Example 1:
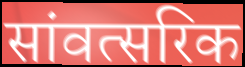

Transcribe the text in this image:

सांवत्सरिक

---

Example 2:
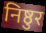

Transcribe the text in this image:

निष्ठुर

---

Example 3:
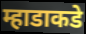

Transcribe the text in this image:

म्हाडाकडे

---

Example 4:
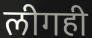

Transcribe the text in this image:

लीगही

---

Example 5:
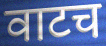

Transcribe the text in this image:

वाटच